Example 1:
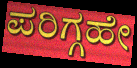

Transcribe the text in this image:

ಪರಿಗ್ಗಹೇ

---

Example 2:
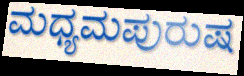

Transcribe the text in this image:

ಮಧ್ಯಮಪುರುಷ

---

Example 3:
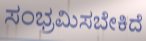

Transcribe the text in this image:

ಸಂಭ್ರಮಿಸಬೇಕಿದೆ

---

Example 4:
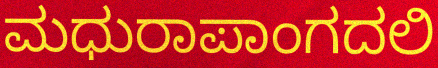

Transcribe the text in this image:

ಮಧುರಾಪಾಂಗದಲಿ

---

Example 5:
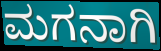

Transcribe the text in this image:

ಮಗನಾಗಿ